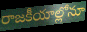
రాజకీయాల్లోనూ